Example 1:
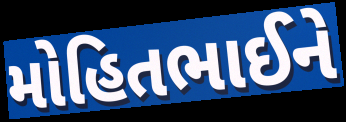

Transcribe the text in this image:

મોહિતભાઈને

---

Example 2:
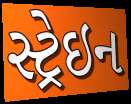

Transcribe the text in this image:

સ્ટ્રેઇન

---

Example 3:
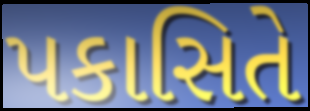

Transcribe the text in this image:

પકાસિતે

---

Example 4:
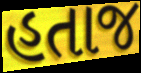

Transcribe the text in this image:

હતાજ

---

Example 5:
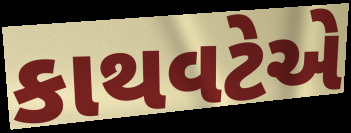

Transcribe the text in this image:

કાથવટેએ